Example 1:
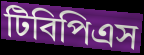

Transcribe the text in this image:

টিবিপিএস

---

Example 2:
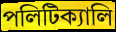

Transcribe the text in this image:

পলিটিক্যালি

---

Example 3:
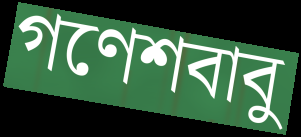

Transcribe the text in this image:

গণেশবাবু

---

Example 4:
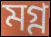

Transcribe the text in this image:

মগ্ন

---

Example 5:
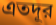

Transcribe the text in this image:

এতদূর